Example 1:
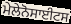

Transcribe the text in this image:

ਮੇਲੇਨੋਸਾਈਟਸ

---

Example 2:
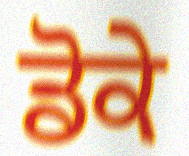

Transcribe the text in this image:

ਡੋਕੇ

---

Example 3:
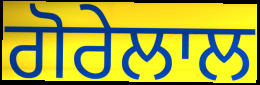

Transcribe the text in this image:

ਗੋਰੇਲਾਲ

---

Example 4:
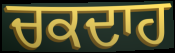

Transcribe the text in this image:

ਚਕਦਾਹ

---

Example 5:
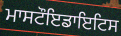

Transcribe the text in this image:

ਮਾਸਟੌਇਡਾਇਟਿਸ